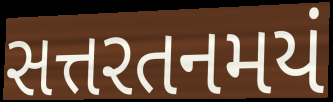
સત્તરતનમયં